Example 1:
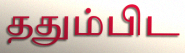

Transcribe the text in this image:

ததும்பிட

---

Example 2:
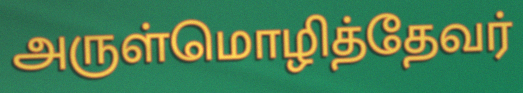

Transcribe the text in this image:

அருள்மொழித்தேவர்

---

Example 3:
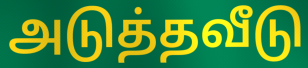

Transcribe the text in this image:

அடுத்தவீடு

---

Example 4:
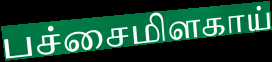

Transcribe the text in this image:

பச்சைமிளகாய்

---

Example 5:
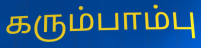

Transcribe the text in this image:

கரும்பாம்பு